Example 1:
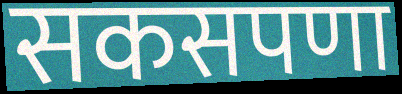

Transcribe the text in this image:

सकसपणा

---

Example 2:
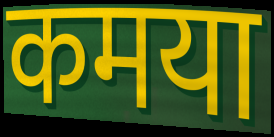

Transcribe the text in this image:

कमया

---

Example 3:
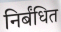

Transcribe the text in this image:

निर्बंधित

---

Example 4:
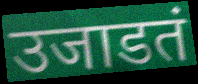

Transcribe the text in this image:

उजाडतं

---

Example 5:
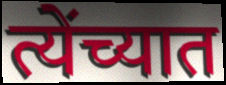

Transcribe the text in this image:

त्येंच्यात